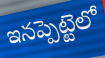
ఇనప్పెట్టెలో